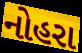
નોહરા